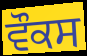
ਵੌਕਸ